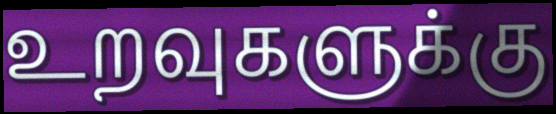
உறவுகளுக்கு